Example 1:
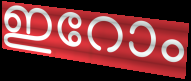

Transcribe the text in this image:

ഇറോം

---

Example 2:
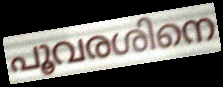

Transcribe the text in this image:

പൂവരശിനെ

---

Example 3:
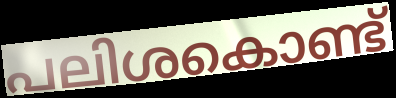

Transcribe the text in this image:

പലിശകൊണ്ട്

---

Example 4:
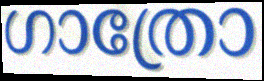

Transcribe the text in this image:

ഗാത്രോ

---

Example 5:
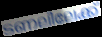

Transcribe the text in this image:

ടണലിലേക്ക്